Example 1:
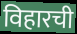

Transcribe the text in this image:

विहारची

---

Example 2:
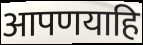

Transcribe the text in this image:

आपणयाहि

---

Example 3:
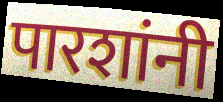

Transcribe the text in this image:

पारशांनी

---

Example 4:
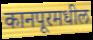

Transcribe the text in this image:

कानपूरमधील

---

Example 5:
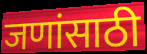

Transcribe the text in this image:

जणांसाठी